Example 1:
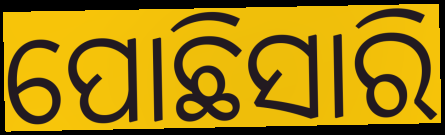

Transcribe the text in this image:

ପୋଛିସାରି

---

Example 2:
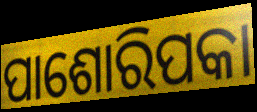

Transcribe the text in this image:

ପାଶୋରିପକା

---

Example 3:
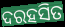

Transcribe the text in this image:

ଦରହସିତ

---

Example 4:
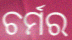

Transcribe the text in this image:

ଚର୍ମର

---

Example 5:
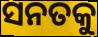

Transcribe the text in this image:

ସନତକୁ